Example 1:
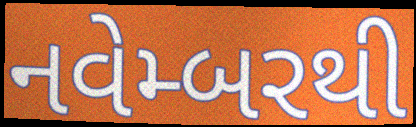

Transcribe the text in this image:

નવેમ્બરથી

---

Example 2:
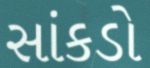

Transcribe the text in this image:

સાંકડો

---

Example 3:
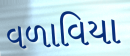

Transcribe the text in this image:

વળાવિયા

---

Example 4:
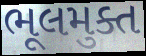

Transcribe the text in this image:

ભૂલમુક્ત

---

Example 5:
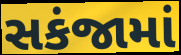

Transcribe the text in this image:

સકંજામાં